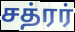
சத்ரர்